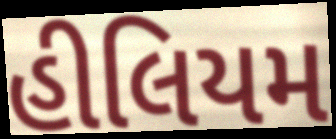
હીલિયમ